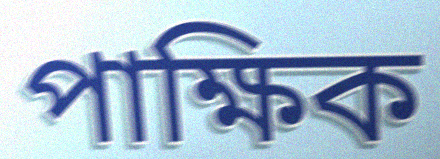
পাক্ষিক